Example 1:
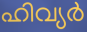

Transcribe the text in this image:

ഹിവ്യർ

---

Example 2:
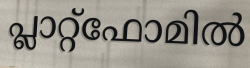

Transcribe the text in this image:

പ്ലാറ്റ്ഫോമിൽ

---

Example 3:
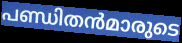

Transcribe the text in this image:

പണ്ഡിതൻമാരുടെ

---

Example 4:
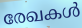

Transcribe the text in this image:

രേഖകൾ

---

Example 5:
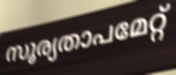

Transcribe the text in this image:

സൂര്യതാപമേറ്റ്